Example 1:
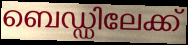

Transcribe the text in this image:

ബെഡ്ഡിലേക്ക്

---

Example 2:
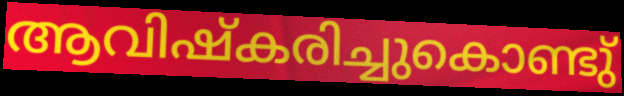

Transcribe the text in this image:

ആവിഷ്കരിച്ചുകൊണ്ടു്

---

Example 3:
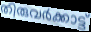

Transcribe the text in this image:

തിരുവർക്കാട്ട്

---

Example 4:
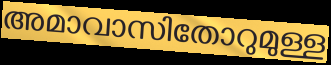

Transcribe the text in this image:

അമാവാസിതോറുമുള്ള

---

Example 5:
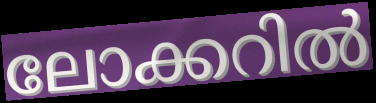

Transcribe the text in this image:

ലോക്കറിൽ